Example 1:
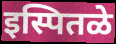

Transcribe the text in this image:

इस्पितळे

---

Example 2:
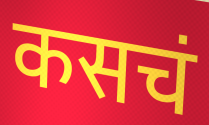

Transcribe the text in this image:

कसचं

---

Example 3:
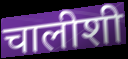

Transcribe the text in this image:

चालीशी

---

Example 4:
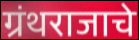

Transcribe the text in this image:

ग्रंथराजाचे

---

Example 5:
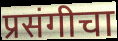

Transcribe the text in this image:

प्रसंगीचा